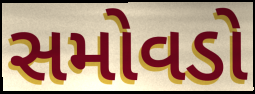
સમોવડો